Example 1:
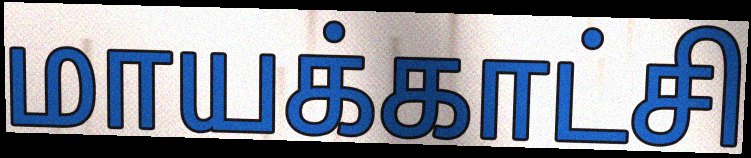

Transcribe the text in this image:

மாயக்காட்சி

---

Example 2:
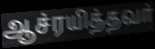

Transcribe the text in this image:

ஆச்ரயித்தவர்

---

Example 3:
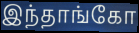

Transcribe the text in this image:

இந்தாங்கோ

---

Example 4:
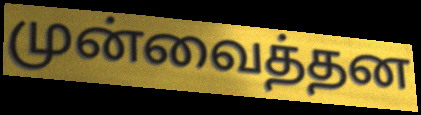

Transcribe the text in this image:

முன்வைத்தன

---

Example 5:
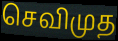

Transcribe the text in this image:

செவிமுத